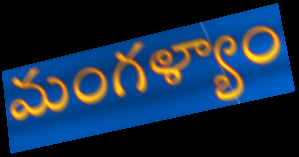
మంగళ్యాం